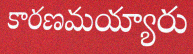
కారణమయ్యారు